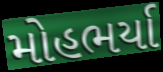
મોહભર્યા